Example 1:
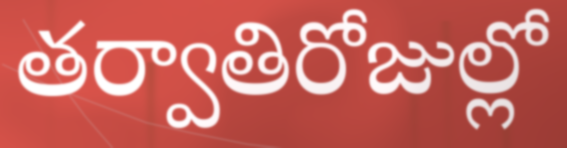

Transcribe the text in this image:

తర్వాతిరోజుల్లో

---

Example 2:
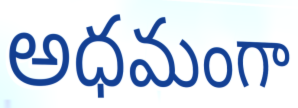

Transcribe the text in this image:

అధమంగా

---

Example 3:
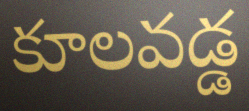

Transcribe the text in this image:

కూలవడ్డ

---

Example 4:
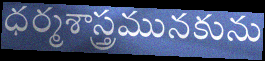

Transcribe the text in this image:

ధర్మశాస్త్రమునకును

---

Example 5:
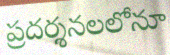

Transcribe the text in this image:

ప్రదర్శనలలోనూ